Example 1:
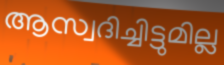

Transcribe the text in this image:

ആസ്വദിച്ചിട്ടുമില്ല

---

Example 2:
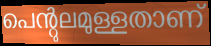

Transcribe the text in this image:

പെന്റുലമുള്ളതാണ്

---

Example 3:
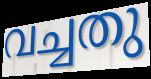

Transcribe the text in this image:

വച്ചതു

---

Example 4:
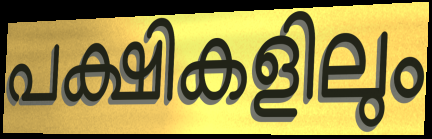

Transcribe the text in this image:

പക്ഷികളിലും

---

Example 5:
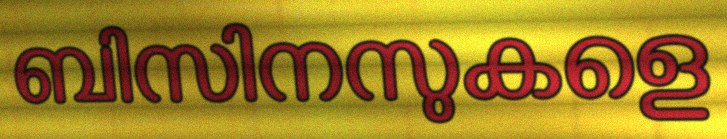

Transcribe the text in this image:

ബിസിനസുകളെ